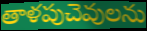
తాళపుచెవులను